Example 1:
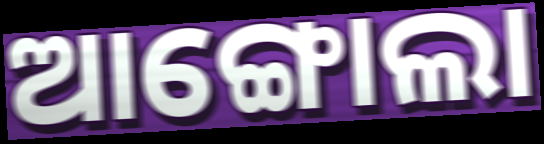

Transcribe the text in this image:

ଆଙ୍ଗୋଲା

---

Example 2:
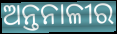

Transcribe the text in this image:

ଅନ୍ତନାଳୀର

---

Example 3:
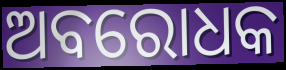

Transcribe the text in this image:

ଅବରୋଧକ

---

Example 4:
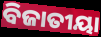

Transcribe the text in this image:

ବିଜାତୀୟା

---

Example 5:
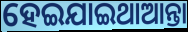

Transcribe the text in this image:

ହେଇଯାଇଥାଆନ୍ତା